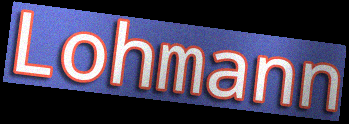
Lohmann